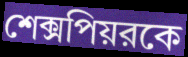
শেক্সপিয়রকে